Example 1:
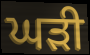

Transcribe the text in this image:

ਘਡ਼ੀ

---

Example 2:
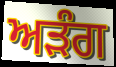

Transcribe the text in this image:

ਅੜੰਗ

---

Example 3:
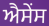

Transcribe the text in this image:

ਐਸੇਂਸ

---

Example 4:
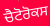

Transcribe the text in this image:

ਚੈਟੋਰੋਕਸ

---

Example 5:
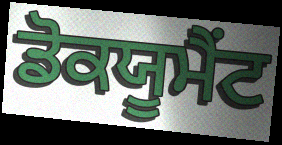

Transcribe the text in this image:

ਡੋਕਯੂਮੈਂਟ